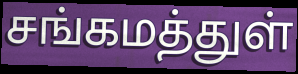
சங்கமத்துள்